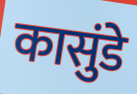
कासुंडे